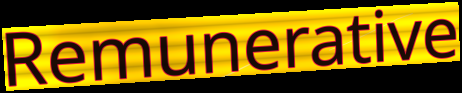
Remunerative